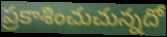
ప్రకాశించుచున్నదో